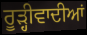
ਰੂੜ੍ਹੀਵਾਦੀਆਂ